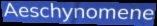
Aeschynomene